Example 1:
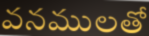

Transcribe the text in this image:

వనములతో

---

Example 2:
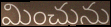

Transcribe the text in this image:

మించును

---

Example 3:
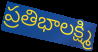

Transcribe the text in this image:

ప్రతిభాలక్ష్మి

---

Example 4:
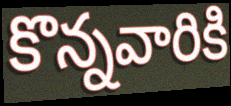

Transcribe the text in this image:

కొన్నవారికి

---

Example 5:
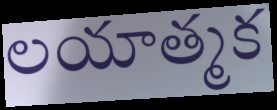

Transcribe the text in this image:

లయాత్మక